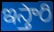
ఇస్తారి